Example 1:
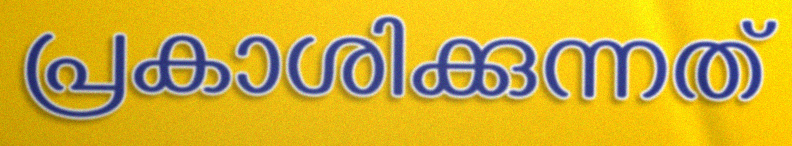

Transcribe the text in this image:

പ്രകാശിക്കുന്നത്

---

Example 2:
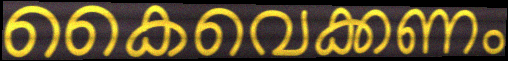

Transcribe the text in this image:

കൈവെക്കണം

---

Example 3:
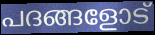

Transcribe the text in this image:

പദങ്ങളോട്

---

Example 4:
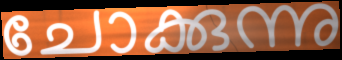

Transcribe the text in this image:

ചോക്കുന്നു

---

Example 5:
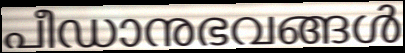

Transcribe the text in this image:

പീഡാനുഭവങ്ങൾ